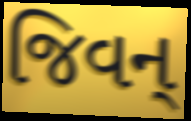
જિવન્